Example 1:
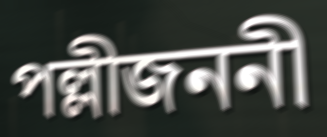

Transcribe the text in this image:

পল্লীজননী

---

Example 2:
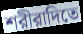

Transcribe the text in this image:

শরীরাদিতে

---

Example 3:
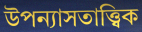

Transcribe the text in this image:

উপন্যাসতাত্ত্বিক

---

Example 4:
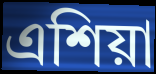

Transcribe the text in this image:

এশিয়া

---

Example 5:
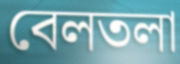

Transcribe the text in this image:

বেলতলা